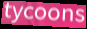
tycoons